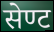
सेण्ट